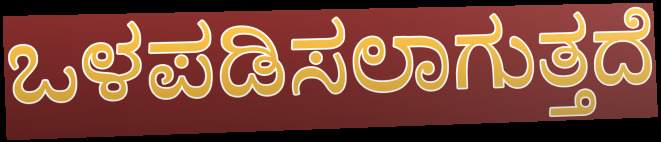
ಒಳಪಡಿಸಲಾಗುತ್ತದೆ